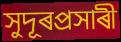
সুদূৰপ্ৰসাৰী